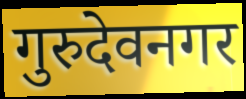
गुरुदेवनगर